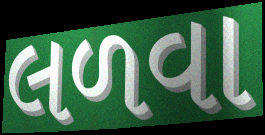
લળવા